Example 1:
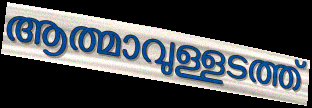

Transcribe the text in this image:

ആത്മാവുള്ളടത്ത്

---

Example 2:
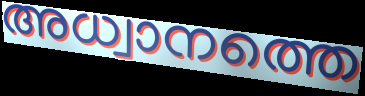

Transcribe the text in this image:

അധ്വാനത്തെ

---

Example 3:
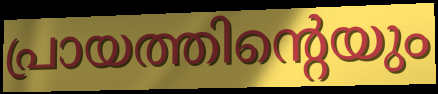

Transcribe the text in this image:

പ്രായത്തിന്റെയും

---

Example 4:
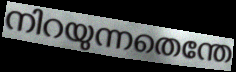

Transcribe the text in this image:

നിറയുന്നതെന്തേ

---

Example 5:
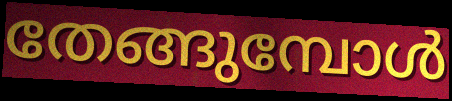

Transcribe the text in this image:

തേങ്ങുമ്പോൾ